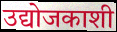
उद्योजकाशी